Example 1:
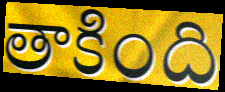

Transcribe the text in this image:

తాకింది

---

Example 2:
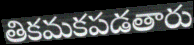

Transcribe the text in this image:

తికమకపడతారు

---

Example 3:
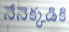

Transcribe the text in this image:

నేనెక్కడికి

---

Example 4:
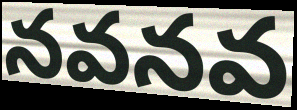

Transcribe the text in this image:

నవనవ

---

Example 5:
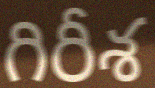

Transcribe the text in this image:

గిరీశ